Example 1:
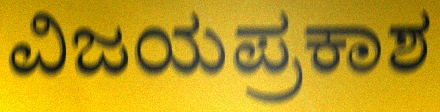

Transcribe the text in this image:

ವಿಜಯಪ್ರಕಾಶ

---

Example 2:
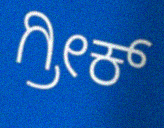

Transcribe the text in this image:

ಗ್ರೀಕ್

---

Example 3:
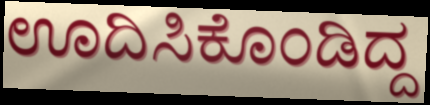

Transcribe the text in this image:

ಊದಿಸಿಕೊಂಡಿದ್ದ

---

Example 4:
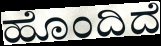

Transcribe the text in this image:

ಹೊಂದಿದೆ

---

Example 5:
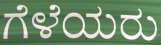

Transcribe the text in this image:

ಗೆಳೆಯರು